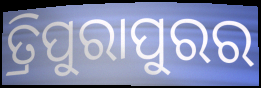
ତ୍ରିପୁରାପୁରର